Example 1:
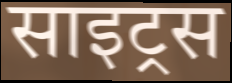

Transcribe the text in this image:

साइट्रस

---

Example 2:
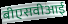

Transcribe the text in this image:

बीएसवीआई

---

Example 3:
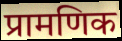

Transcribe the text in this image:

प्रामणिक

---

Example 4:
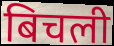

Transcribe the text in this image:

बिचली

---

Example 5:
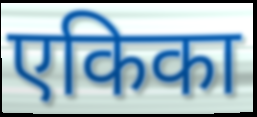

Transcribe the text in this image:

एकिका